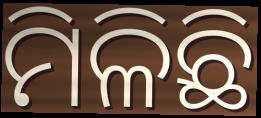
ମିଳିଛି